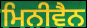
ਮਿਨੀਵੈਨ